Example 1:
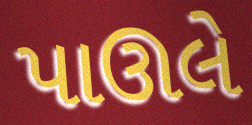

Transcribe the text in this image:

પાઊલે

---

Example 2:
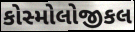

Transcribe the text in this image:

કોસ્મોલોજીકલ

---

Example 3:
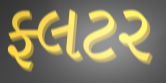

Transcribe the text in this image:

ફ્લટર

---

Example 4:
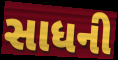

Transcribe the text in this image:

સાધની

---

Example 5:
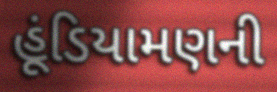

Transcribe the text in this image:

હૂંડિયામણની